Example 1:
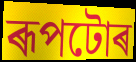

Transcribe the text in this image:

ৰূপটোৰ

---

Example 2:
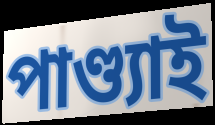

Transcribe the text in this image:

পাণ্ড্যাই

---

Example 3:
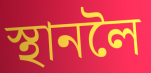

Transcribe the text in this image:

স্থানলৈ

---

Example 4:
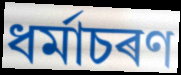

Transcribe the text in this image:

ধৰ্মাচৰণ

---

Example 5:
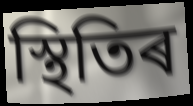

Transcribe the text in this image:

স্থিতিৰ